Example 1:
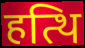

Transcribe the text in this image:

हत्थि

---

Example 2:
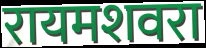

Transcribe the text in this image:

रायमशवरा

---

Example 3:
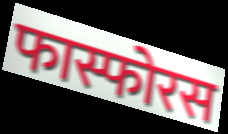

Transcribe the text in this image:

फास्‍फोरस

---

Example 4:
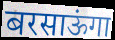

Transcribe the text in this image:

बरसाऊंगा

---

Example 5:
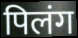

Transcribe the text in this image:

पिलंग